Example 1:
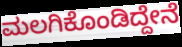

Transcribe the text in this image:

ಮಲಗಿಕೊಂಡಿದ್ದೇನೆ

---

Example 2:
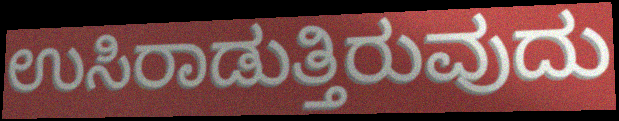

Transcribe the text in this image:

ಉಸಿರಾಡುತ್ತಿರುವುದು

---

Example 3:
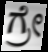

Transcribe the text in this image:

ಗ್ರೇ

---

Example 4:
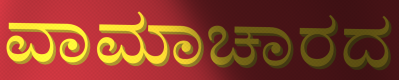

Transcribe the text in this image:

ವಾಮಾಚಾರದ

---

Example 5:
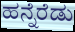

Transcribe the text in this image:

ಹನ್ನೆರೆಡು